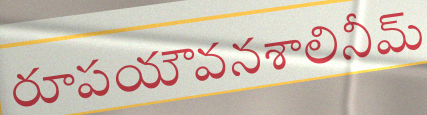
రూపయౌవనశాలినీమ్